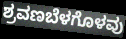
ಶ್ರವಣಬೆಳಗೊಳವು